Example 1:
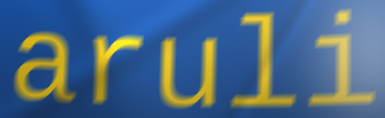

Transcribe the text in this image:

aruli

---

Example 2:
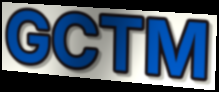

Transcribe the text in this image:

GCTM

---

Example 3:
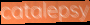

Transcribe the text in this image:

catalepsy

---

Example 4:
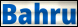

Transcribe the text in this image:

Bahru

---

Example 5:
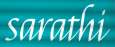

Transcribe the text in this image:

sarathi